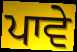
ਪਾਵੇ